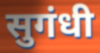
सुगंधी